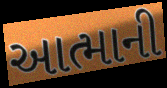
આત્માની